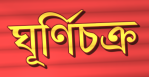
ঘূর্ণিচক্র